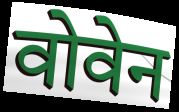
वोवेन